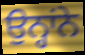
ਉਨ੍ਹਾਂਨੇ